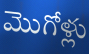
మొగోళ్లు